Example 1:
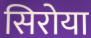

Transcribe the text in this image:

सिरोया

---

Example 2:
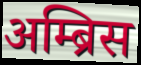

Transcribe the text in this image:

अम्ब्रिस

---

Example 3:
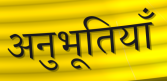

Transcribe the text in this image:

अनुभूतियाँ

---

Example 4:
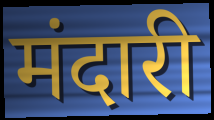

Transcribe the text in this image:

मंदारी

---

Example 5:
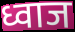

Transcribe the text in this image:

ध्वाज